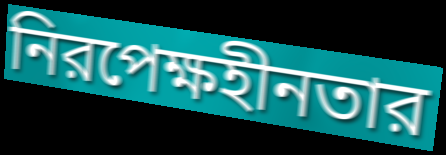
নিরপেক্ষহীনতার